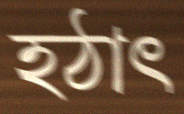
হঠাৎ